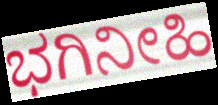
ಭಗಿನೀಹಿ